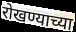
रोखण्याच्या